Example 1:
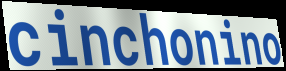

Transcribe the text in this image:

cinchonino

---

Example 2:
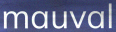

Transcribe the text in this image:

mauval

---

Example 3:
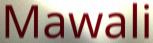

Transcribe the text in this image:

Mawali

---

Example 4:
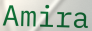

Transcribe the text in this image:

Amira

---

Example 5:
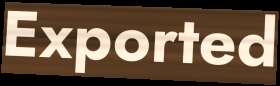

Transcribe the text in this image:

Exported